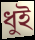
ধুই